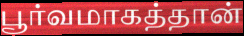
பூர்வமாகத்தான்